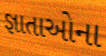
જ્ઞાતાઓના